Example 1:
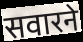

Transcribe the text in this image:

सवारने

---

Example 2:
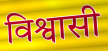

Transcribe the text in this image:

विश्वासी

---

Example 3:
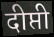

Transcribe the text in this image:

दीप्ती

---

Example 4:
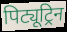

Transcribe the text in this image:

पिट्यूट्रिन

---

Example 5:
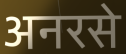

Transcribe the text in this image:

अनरसे